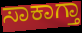
ಸಾಕಾಗ್ತಾ